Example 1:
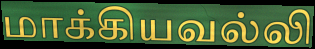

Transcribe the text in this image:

மாக்கியவல்லி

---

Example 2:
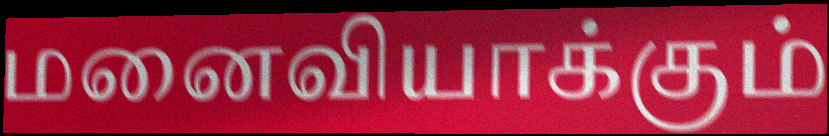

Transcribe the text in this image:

மனைவியாக்கும்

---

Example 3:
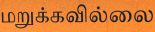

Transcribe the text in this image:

மறுக்கவில்லை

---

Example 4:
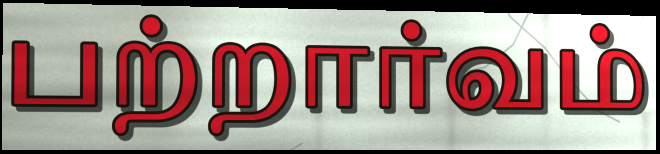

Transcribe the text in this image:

பற்றார்வம்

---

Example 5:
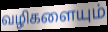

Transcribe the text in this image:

வழிகளையும்